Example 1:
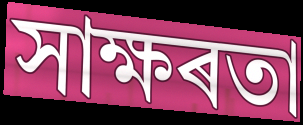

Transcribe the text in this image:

সাক্ষৰতা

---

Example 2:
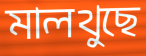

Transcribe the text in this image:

মালথুছে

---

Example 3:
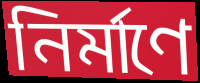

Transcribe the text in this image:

নিৰ্মাণে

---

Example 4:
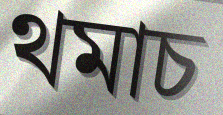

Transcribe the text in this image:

থমাচ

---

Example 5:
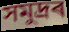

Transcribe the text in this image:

সমুদ্ৰৰ